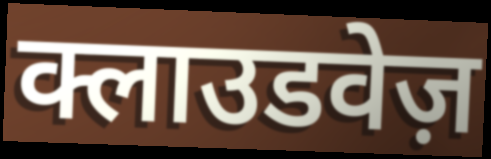
क्लाउडवेज़